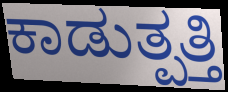
ಕಾಡುತ್ಪತ್ತಿ